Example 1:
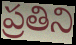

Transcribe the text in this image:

ప్రతిని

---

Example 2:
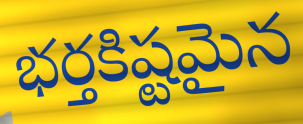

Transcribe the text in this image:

భర్తకిష్టమైన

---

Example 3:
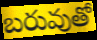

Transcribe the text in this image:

బరువుతో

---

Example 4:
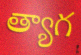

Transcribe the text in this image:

త్యాగ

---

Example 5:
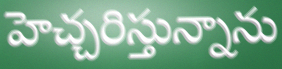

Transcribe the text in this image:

హెచ్చరిస్తున్నాను